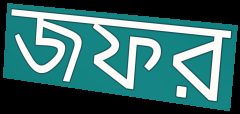
জফর